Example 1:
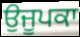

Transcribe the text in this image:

ਉਜੂਪਕਾ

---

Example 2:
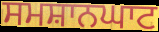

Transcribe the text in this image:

ਸਮਸ਼ਾਨਘਾਟ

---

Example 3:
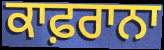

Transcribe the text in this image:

ਕਾਫ਼ਰਾਨਾ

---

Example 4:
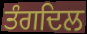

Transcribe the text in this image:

ਤੰਗਦਿਲ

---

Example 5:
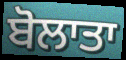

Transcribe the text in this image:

ਬੋਲਾਤਾ